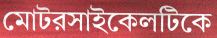
মোটরসাইকেলটিকে